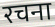
रचना